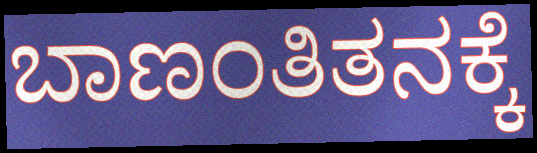
ಬಾಣಂತಿತನಕ್ಕೆ